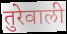
तुरेवाली